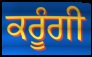
ਕਰੂੰਗੀ